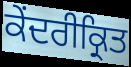
ਕੇਂਦਰੀਕ੍ਰਿਤ